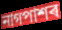
নাগপাশৰ